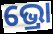
ଭ୍ରୋ